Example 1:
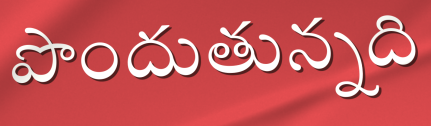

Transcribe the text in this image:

పొందుతున్నది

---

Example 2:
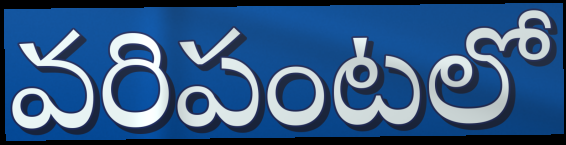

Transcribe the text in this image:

వరిపంటలో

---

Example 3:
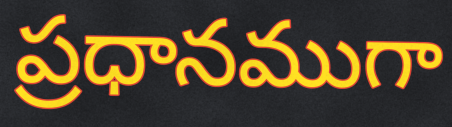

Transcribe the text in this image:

ప్రధానముగా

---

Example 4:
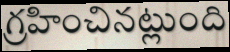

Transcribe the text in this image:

గ్రహించినట్లుంది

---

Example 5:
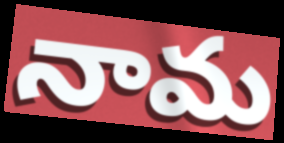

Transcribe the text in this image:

నామ